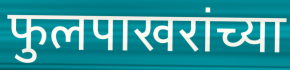
फुलपाखरांच्या